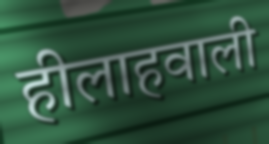
हीलाहवाली